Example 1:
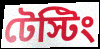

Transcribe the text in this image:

টেস্টিং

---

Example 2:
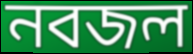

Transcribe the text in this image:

নবজল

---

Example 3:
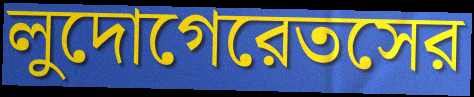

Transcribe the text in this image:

লুদোগেরেতসের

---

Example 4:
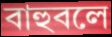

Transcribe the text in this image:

বাহুবলে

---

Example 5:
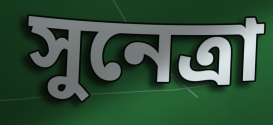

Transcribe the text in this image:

সুনেত্রা